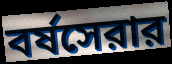
বর্ষসেরার